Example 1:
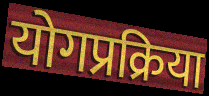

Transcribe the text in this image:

योगप्रक्रिया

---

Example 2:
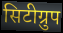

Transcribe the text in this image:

सिटीग्रुप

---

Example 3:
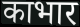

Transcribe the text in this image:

काभार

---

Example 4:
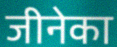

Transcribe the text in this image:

जीनेका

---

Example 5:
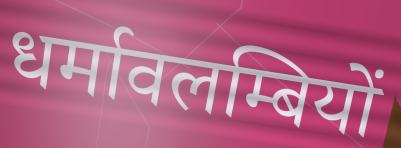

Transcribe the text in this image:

धर्मावलम्बियों